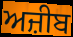
ਅਜ਼ੀਬ